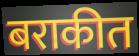
बराकीत